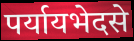
पर्यायभेदसे